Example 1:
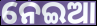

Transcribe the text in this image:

ନେଇଆ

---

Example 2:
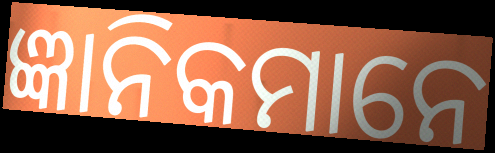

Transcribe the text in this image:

ଜ୍ଞାନିକମାନେ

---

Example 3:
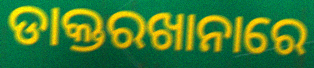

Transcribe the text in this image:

ଡାକ୍ତରଖାନାରେ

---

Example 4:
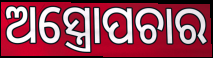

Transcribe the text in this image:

ଅସ୍ତ୍ରୋପଚାର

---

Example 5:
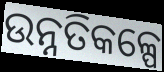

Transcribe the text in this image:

ଉନ୍ନତିକଳ୍ପେ